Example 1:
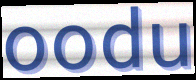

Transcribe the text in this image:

oodu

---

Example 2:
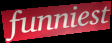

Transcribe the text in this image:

funniest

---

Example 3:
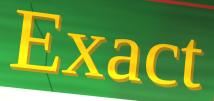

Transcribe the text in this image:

Exact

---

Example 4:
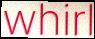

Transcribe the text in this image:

whirl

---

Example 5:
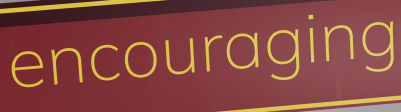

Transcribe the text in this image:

encouraging